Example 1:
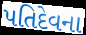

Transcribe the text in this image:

પતિદેવના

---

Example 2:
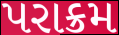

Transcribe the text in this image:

પરાક્રમ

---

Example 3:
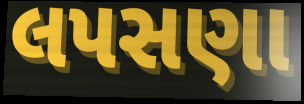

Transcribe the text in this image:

લપસણા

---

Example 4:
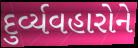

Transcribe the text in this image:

દુર્વ્યવહારોને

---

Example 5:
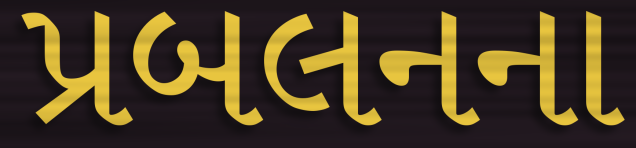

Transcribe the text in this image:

પ્રબલનના